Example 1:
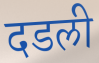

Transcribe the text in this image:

दडली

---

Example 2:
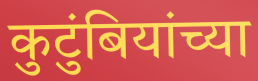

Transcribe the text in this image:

कुटुंबियांच्या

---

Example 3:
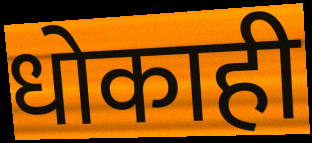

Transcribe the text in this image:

धोकाही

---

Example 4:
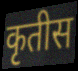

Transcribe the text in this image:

कृतीस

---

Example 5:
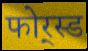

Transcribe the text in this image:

फोर्स्ड